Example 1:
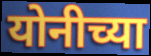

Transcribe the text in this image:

योनीच्या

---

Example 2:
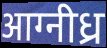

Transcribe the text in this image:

आग्नीध्र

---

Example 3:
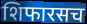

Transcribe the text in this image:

शिफारसच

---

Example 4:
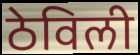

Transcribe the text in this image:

ठेविली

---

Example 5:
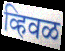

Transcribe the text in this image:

व्हिवळ